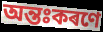
অন্তঃকৰণে